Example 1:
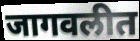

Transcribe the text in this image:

जागवलीत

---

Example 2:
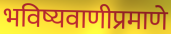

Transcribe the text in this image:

भविष्यवाणीप्रमाणे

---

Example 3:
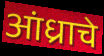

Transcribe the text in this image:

आंध्राचे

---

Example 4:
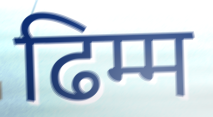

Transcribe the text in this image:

ढिम्म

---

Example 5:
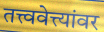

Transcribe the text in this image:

तत्त्ववेत्त्यांवर